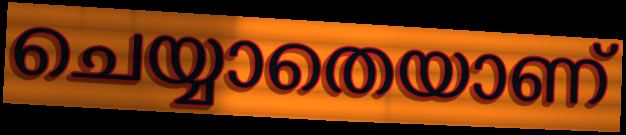
ചെയ്യാതെയാണ്